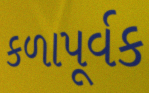
કળાપૂર્વક